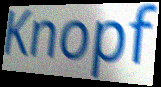
Knopf